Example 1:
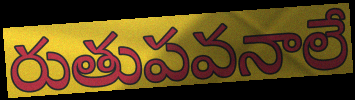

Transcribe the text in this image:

రుతుపవనాలే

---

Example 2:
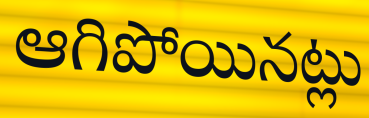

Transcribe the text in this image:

ఆగిపోయినట్లు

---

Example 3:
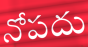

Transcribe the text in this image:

నోపదు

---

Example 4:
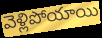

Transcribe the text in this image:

వెళ్లిపోయాయి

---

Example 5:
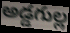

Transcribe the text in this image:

అడ్డగుల్ల